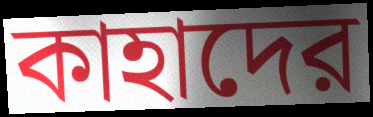
কাহাদের